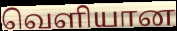
வெளியான